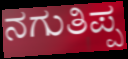
ನಗುತಿಪ್ಪ